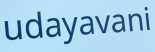
udayavani